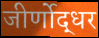
जीर्णोद्धर